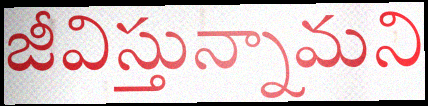
జీవిస్తున్నామని